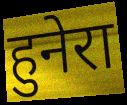
हुनेरा